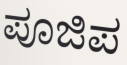
ಪೂಜಿಪ